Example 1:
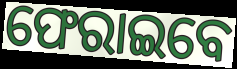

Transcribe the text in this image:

ଫେରାଇବେ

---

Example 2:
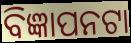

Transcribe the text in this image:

ବିଜ୍ଞାପନଟା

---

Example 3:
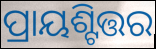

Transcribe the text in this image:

ପ୍ରାୟଶ୍ଟିତ୍ତର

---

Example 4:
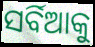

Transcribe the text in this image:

ସର୍ବିଆକୁ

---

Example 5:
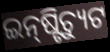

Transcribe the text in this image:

ଇନ୍‌ଷ୍ଟିଚ୍ୟୁଟ